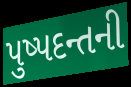
પુષ્પદન્તની